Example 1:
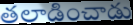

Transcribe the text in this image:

తలాడించాడు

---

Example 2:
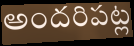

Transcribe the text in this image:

అందరిపట్ల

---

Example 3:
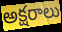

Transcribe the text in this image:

అక్షరాలు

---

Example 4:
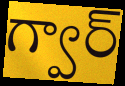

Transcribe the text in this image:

గ్వార్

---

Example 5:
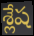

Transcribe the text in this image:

శ్లేష